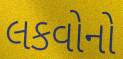
લકવોનો